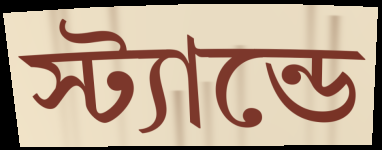
স্ট্যান্ডে